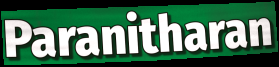
Paranitharan